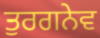
ਤੁਰਗਨੇਵ